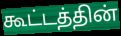
கூட்டத்தின்